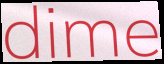
dime